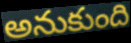
అనుకుంది